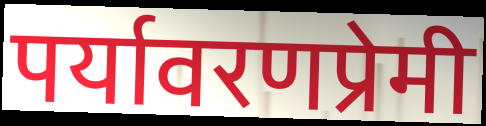
पर्यावरणप्रेमी